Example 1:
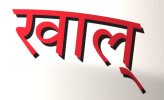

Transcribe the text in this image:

खाल्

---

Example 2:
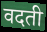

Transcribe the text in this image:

वदती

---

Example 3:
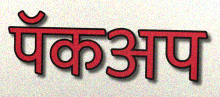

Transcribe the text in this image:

पॅकअप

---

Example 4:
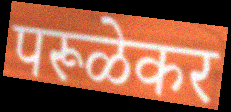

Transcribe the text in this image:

परूळेकर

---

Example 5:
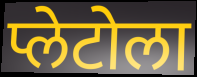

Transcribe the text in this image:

प्लेटोला